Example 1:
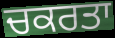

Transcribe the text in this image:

ਚਕਰਤਾ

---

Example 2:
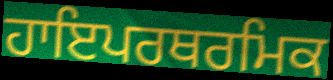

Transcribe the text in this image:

ਹਾਇਪਰਥਰਮਿਕ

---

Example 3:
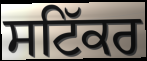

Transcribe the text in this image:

ਸਟਿੱਕਰ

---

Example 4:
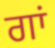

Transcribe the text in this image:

ਗਾਂ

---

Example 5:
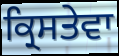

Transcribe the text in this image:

ਕ੍ਰਿਸਤੇਵਾ